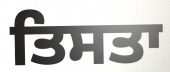
ਤਿਸਤਾ